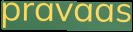
pravaas